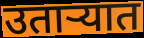
उताऱ्यात